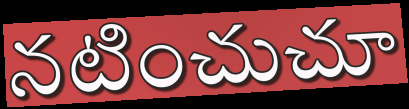
నటించుచూ